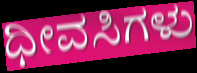
ಧೀವಸಿಗಳು